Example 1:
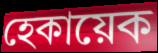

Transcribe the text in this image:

হেকায়েক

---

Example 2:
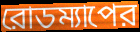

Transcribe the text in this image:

রোডম্যাপের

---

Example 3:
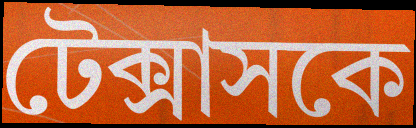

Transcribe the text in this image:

টেক্সাসকে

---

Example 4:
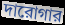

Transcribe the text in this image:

দারোগার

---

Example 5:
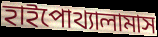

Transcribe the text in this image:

হাইপোথ্যালামাস